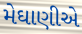
મેઘાણીએ